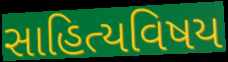
સાહિત્યવિષય